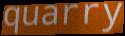
quarry